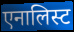
एनालिस्ट